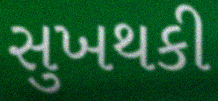
સુખથકી